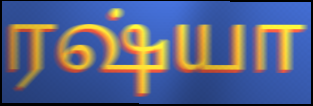
ரஷ்யா